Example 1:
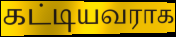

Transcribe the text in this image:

கட்டியவராக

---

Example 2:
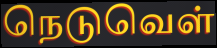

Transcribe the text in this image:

நெடுவெள்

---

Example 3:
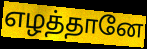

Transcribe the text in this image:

எழத்தானே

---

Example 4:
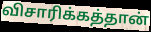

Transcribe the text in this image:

விசாரிக்கத்தான்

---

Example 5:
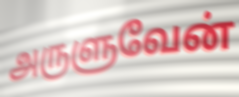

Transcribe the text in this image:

அருளுவேன்